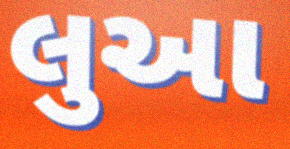
લુઆ